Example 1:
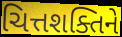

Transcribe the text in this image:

ચિત્તશક્તિને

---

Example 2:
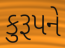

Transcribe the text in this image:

કુરૂપને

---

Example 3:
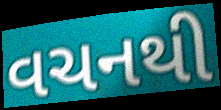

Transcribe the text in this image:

વચનથી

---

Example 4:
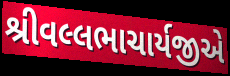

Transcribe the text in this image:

શ્રીવલ્લભાચાર્યજીએ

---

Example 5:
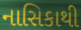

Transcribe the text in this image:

નાસિકાથી